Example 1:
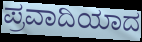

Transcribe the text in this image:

ಪ್ರವಾದಿಯಾದ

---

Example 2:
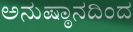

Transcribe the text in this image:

ಅನುಷ್ಠಾನದಿಂದ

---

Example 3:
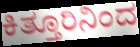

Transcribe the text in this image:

ಕಿತ್ತೂರಿನಿಂದ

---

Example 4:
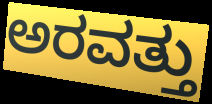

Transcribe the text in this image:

ಅರವತ್ತು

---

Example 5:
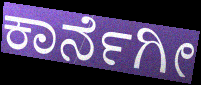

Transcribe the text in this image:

ಕಾರ್ನೆಗೀ